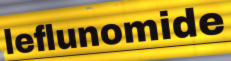
leflunomide